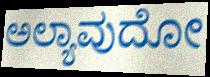
ಅಲ್ಯಾವುದೋ